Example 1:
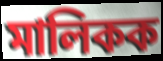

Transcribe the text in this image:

মালিকক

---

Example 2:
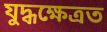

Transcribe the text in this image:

যুদ্ধক্ষেত্ৰত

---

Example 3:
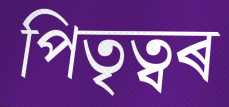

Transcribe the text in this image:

পিতৃত্বৰ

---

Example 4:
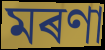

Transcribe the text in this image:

মৰণা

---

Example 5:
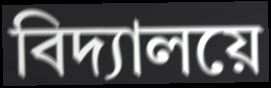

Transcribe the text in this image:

বিদ্যালয়ে